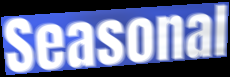
Seasonal